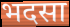
भदसा